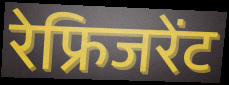
रेफ्रिजरेंट